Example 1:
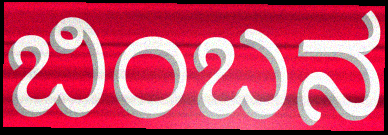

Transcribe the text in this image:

ಬಿಂಬನ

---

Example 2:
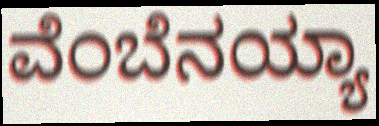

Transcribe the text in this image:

ವೆಂಬೆನಯ್ಯಾ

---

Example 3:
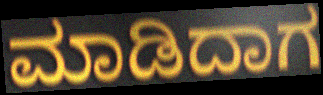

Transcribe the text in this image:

ಮಾಡಿದಾಗ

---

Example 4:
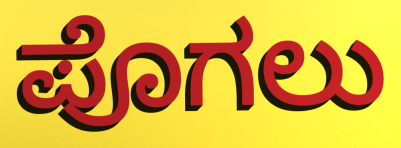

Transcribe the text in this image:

ಪೊಗಲು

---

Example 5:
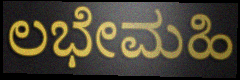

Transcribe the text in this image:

ಲಭೇಮಹಿ